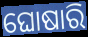
ଘୋଷାରି